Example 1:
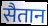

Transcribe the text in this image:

सैतान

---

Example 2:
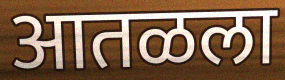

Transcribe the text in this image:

आतळला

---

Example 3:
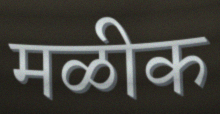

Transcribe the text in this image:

मळीक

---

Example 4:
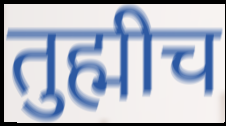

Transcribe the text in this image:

तुह्मीच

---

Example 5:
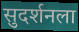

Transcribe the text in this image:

सुदर्शनला